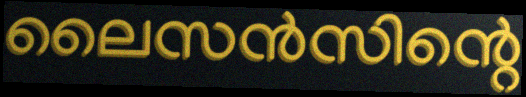
ലൈസൻസിന്റെ